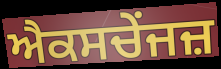
ਐਕਸਚੇਂਜਜ਼